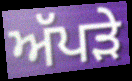
ਅੱਪੜੇ